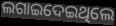
ଲଗାଇଦେଇଥିଲେ